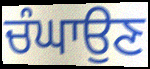
ਚੰਘਾਉਣ